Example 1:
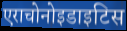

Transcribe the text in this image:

एराचोनोइडाइटिस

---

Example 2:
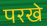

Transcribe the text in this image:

परखे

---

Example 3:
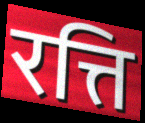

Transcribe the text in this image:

रत्ति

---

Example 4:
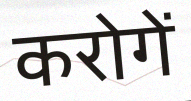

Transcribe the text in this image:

करोगें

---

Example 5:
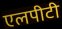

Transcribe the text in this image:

एलपीटी